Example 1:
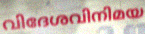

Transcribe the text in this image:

വിദേശവിനിമയ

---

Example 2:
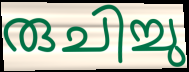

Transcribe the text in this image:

രുചിച്ചു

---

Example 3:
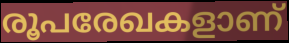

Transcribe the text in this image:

രൂപരേഖകളാണ്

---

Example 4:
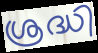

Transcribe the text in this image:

ശ്രദ്ധി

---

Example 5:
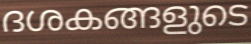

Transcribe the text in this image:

ദശകങ്ങളുടെ